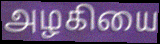
அழகியை